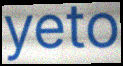
yeto